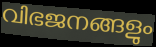
വിഭജനങ്ങളും